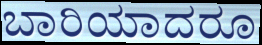
ಬಾರಿಯಾದರೂ